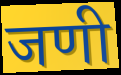
जणी